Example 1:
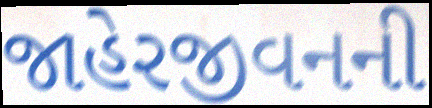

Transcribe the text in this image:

જાહેરજીવનની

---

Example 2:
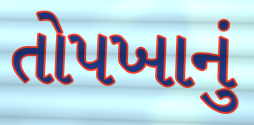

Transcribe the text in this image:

તોપખાનું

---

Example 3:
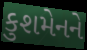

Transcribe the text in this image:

કુશમેનને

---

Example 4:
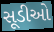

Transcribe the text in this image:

સૂડીઓ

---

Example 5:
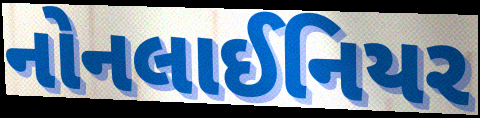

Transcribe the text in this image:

નોનલાઈનિયર